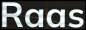
Raas